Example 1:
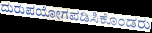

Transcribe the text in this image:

ದುರುಪಯೋಗಪಡಿಸಿಕೊಂಡರು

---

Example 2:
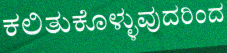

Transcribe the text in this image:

ಕಲಿತುಕೊಳ್ಳುವುದರಿಂದ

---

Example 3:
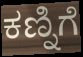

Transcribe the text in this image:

ಕಣ್ನಿಗೆ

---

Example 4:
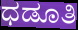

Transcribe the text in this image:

ಧಡೂತಿ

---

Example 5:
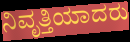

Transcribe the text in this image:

ನಿವೃತ್ತಿಯಾದರು